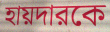
হায়দারকে